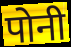
पोनी